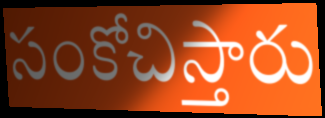
సంకోచిస్తారు